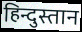
हिन्‍दुस्‍तान